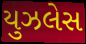
યુઝલેસ